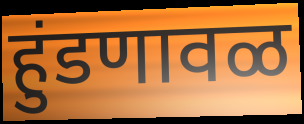
हुंडणावळ